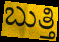
ಬುತ್ತಿ